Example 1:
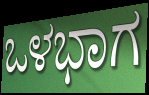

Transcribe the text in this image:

ಒಳಭಾಗ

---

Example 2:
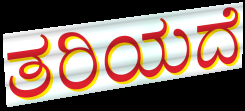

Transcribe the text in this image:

ತರಿಯದೆ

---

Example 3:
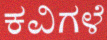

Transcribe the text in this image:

ಕವಿಗಳೆ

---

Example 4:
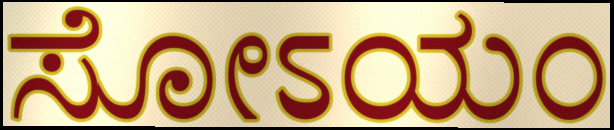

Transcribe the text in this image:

ಸೋಽಯಂ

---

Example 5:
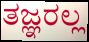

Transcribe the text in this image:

ತಜ್ಞರಲ್ಲ